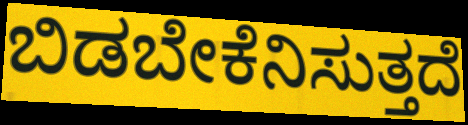
ಬಿಡಬೇಕೆನಿಸುತ್ತದೆ